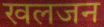
खलजन